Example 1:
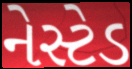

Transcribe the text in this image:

નેસ્ટેડ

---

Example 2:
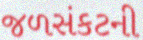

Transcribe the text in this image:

જળસંકટની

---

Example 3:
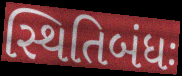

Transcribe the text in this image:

સ્થિતિબંધઃ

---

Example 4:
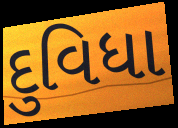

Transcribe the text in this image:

દુવિધા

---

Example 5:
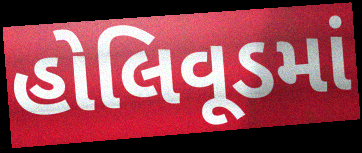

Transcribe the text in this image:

હોલિવૂડમાં